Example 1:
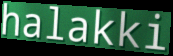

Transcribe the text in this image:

halakki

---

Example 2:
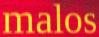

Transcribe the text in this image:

malos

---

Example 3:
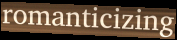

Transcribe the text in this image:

romanticizing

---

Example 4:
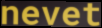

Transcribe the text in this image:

nevet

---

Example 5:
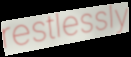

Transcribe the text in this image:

restlessly